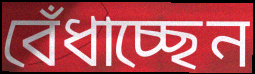
বেঁধাচ্ছেন